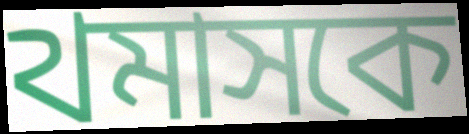
থমাসকে